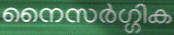
നൈസർഗ്ഗിക